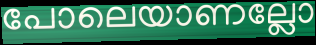
പോലെയാണല്ലോ